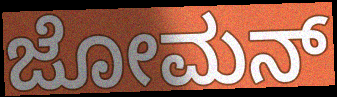
ಜೋಮನ್